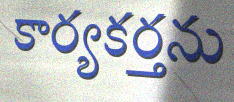
కార్యకర్తను